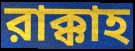
রাক্কাহ